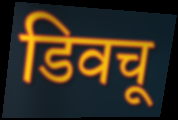
डिवचू